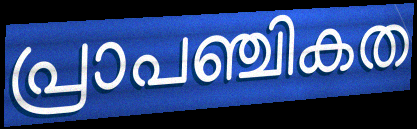
പ്രാപഞ്ചികത